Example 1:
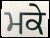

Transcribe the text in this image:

ਮਕੇ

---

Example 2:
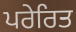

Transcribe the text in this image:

ਪਰੇਰਿਤ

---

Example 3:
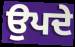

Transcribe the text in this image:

ਉਪਦੇ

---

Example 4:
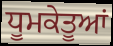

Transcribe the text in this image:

ਧੂਮਕੇਤੂਆਂ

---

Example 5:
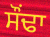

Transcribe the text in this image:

ਸੌਂਢਾ